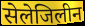
सेलेजिलीन